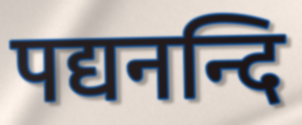
पद्यनन्दि